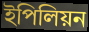
ইপিলিয়ন